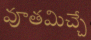
వూతమిచ్చే